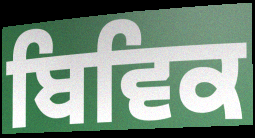
ਬਿਵਿਕ